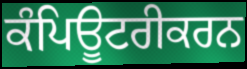
ਕੰਪਿਊਟਰੀਕਰਨ